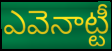
ఎవెనాట్టీ